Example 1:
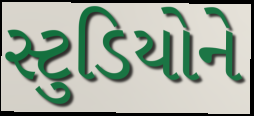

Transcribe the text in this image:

સ્ટુડિયોને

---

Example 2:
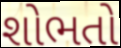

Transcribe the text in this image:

શોભતો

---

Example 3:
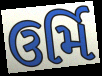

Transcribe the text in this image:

ઉર્મિ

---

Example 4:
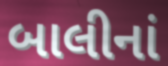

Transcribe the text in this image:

બાલીનાં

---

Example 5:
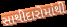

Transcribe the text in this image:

સાથીદારોમાંથી